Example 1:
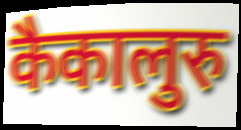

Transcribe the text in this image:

कैकालुरु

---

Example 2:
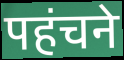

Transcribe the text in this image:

पहंचने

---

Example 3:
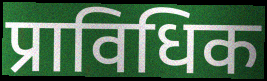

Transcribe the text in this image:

प्राविधिक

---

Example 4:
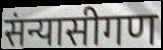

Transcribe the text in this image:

संन्यासीगण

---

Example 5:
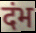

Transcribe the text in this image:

दंभ